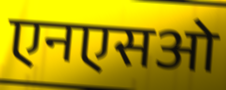
एनएसओ